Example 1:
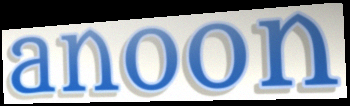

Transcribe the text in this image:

anoon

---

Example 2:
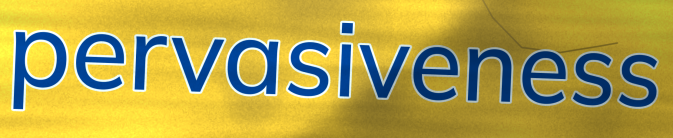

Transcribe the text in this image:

pervasiveness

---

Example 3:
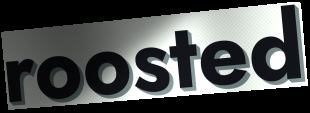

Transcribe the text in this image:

roosted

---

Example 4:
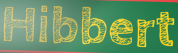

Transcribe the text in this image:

Hibbert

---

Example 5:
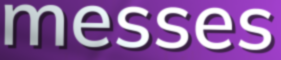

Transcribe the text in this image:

messes